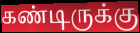
கண்டிருக்கு